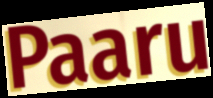
Paaru